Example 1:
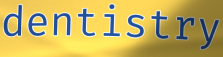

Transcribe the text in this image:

dentistry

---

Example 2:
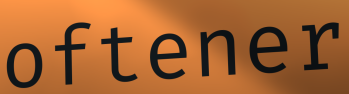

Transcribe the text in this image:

oftener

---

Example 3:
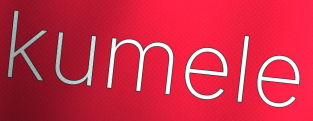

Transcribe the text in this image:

kumele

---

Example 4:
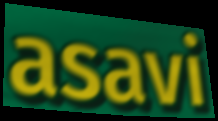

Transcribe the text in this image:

asavi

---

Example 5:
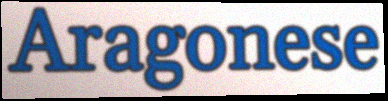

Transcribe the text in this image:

Aragonese